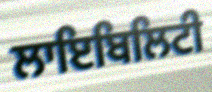
ਲਾਇਬਿਲਿਟੀ